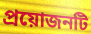
প্রয়োজনটি